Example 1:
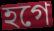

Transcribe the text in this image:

হগে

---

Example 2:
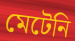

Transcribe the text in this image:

মেটেনি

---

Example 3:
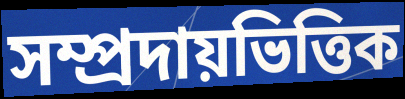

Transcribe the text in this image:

সম্প্রদায়ভিত্তিক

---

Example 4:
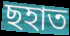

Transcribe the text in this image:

ছহাত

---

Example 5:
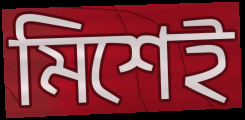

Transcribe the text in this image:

মিশেই